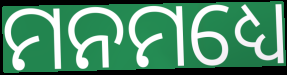
ମନମଧ୍ୟେ